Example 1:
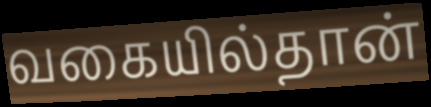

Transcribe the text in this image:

வகையில்தான்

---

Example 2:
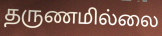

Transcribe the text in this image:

தருணமில்லை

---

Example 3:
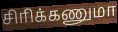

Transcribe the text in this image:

சிரிக்கணுமா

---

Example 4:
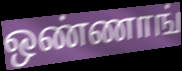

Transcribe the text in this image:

ஒண்ணாங்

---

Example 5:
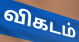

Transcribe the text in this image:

விகடம்